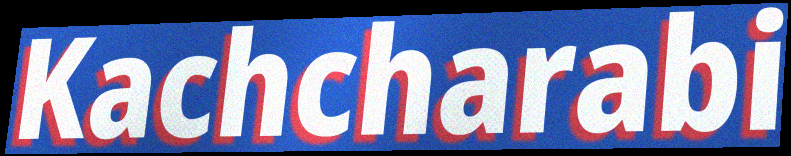
Kachcharabi